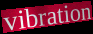
vibration